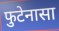
फुटेनासा